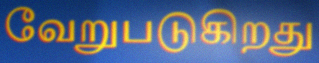
வேறுபடுகிறது